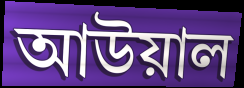
আউয়াল